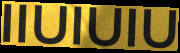
IIUIUIU